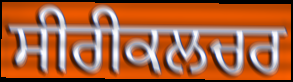
ਸੀਰੀਕਲਚਰ